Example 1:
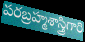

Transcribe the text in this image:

పరబ్రహ్మశాస్త్రిగారి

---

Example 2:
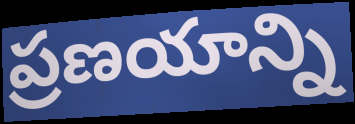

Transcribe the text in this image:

ప్రణయాన్ని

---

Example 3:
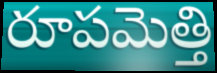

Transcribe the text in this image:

రూపమెత్తి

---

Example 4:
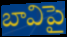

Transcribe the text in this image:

బావిపై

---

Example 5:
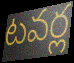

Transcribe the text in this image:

టవర్ల